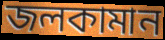
জলকামান